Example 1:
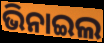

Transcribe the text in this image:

ଭିନାଇଲ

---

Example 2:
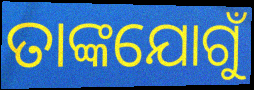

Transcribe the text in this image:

ତାଙ୍କଯୋଗୁଁ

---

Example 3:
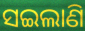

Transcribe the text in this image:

ସଇଲାଣି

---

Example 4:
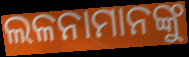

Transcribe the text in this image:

ଲଳନାମାନଙ୍କୁ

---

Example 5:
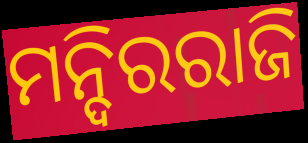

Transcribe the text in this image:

ମନ୍ଦିରରାଜି